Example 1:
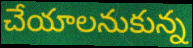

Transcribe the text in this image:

చేయాలనుకున్న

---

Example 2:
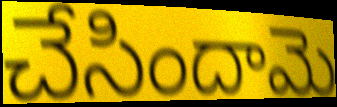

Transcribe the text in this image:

చేసిందామె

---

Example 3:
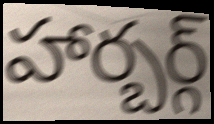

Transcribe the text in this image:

హార్బర్గ్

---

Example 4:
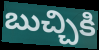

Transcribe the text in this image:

బుచ్చికి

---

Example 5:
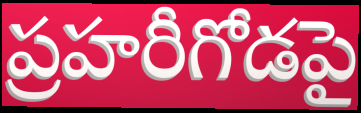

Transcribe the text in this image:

ప్రహరీగోడపై